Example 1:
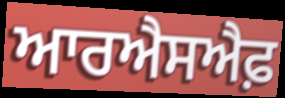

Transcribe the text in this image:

ਆਰਐਸਐਫ਼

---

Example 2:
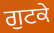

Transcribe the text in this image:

ਗੁਟਕੇ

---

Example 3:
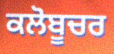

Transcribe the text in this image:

ਕਲੋਬੂਚਰ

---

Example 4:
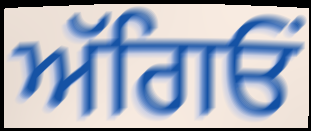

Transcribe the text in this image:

ਅੱਗਿਓਂ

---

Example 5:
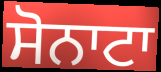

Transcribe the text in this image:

ਸੋਨਾਟਾ